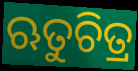
ଋତୁଚିତ୍ର